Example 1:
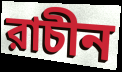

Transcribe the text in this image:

রাচীন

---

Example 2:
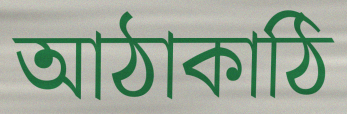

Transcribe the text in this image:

আঠাকাঠি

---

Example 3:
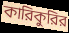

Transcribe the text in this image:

কারিকুরির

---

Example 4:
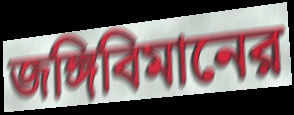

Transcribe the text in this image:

জঙ্গিবিমানের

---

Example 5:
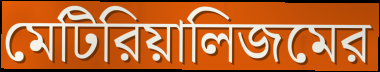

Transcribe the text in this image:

মেটিরিয়ালিজমের